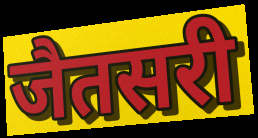
जैतसरी